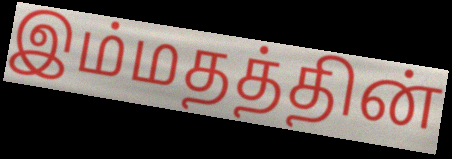
இம்மதத்தின்